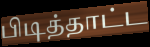
பிடித்தாட்ட